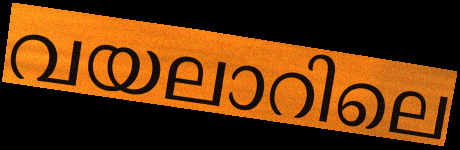
വയലാറിലെ